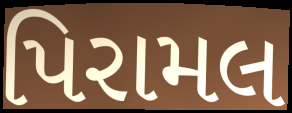
પિરામલ